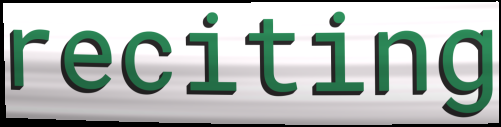
reciting